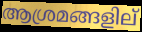
ആശ്രമങ്ങളില്